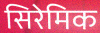
सिरेमिक